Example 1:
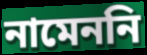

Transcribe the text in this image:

নামেননি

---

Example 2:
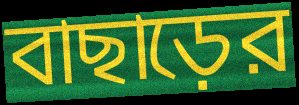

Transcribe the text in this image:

বাছাড়ের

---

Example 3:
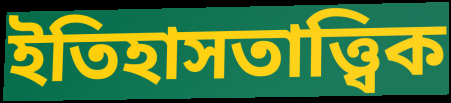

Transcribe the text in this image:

ইতিহাসতাত্ত্বিক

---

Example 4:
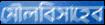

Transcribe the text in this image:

মৌলবিসাহেব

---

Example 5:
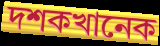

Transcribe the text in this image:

দশকখানেক